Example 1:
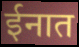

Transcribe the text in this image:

ईनात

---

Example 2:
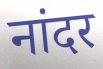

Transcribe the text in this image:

नांदर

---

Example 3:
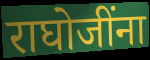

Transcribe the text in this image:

राघोजींना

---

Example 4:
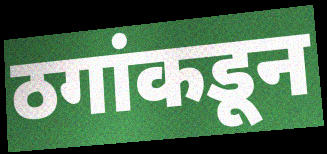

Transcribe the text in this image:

ठगांकडून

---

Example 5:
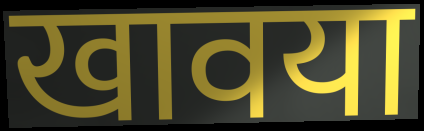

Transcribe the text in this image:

खावया